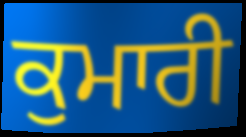
ਕੁਮਾਰੀ